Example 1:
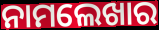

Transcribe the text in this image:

ନାମଲେଖାର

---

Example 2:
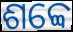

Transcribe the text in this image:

ଶବ୍ବେ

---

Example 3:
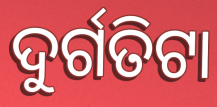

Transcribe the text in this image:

ଦୁର୍ଗତିଟା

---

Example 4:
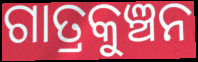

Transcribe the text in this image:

ଗାତ୍ରକୁଞ୍ଚନ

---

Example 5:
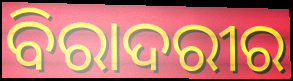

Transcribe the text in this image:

ବିରାଦରୀର